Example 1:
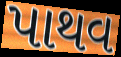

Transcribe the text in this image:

પાથવ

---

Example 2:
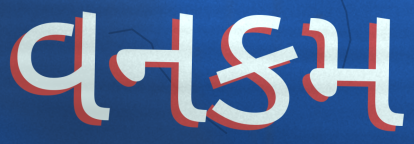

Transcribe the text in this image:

વનકમ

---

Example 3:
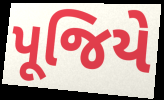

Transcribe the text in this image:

પૂજિયે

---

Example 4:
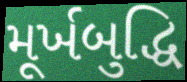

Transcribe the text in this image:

મૂર્ખબુદ્ધિ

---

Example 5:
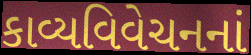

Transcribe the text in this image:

કાવ્યવિવેચનનાં